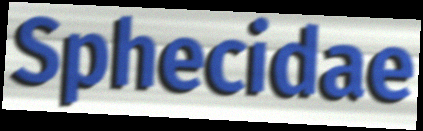
Sphecidae